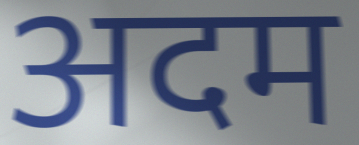
अदम